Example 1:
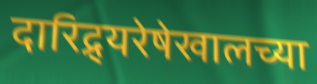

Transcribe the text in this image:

दारिद्र्यरेषेखालच्या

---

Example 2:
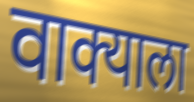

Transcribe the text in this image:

वाक्‍याला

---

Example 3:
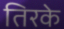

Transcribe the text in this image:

तिरके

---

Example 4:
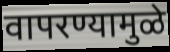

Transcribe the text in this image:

वापरण्यामुळे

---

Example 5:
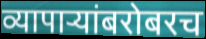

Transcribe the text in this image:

व्यापाऱ्यांबरोबरच